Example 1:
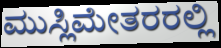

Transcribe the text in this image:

ಮುಸ್ಲಿಮೇತರರಲ್ಲಿ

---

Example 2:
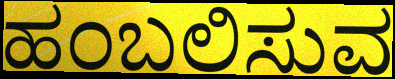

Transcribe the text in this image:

ಹಂಬಲಿಸುವ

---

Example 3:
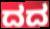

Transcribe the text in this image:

ದದ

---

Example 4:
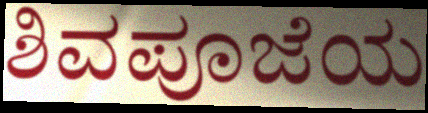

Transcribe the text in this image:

ಶಿವಪೂಜೆಯ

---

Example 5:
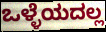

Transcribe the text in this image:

ಒಳ್ಳೆಯದಲ್ಲ